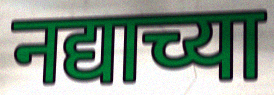
नद्याच्या